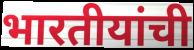
भारतीयांची